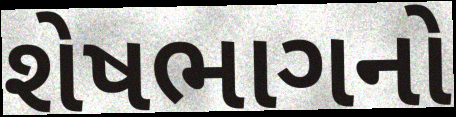
શેષભાગનો